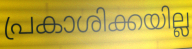
പ്രകാശിക്കയില്ല